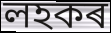
লহকৰ